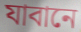
যাবানে